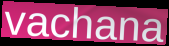
vachana